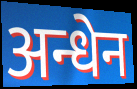
अन्धेन